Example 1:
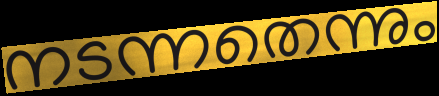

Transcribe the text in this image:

നടന്നതെന്നും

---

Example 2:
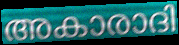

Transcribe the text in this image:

അകാരാദി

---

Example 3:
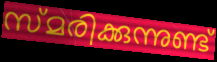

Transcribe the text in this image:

സ്മരിക്കുന്നുണ്ട്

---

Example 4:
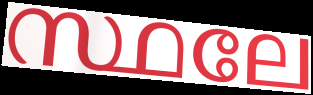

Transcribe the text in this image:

സ്ഥലേ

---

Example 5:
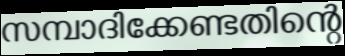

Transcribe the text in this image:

സമ്പാദിക്കേണ്ടതിന്റെ